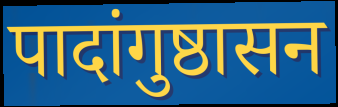
पादांगुष्ठासन